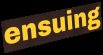
ensuing